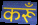
करूँ